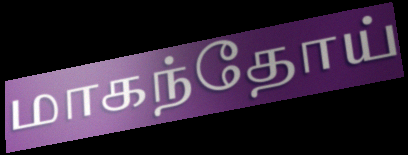
மாகந்தோய்